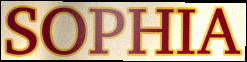
SOPHIA